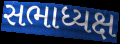
સભાધ્યક્ષ